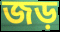
জড়